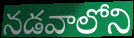
నడవాలోని